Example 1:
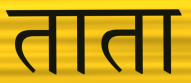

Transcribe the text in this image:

ताता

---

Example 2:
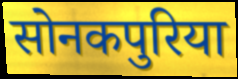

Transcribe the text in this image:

सोनकपुरिया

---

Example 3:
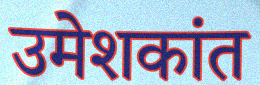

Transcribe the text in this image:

उमेशकांत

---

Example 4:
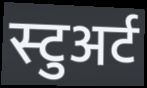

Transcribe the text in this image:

स्टुअर्ट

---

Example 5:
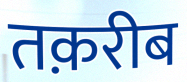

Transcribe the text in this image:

तक़रीब